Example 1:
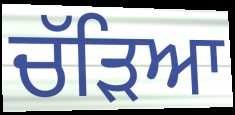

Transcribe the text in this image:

ਚੱੜਿਆ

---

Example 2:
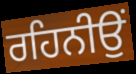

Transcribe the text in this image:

ਰਹਿਨੀਉਂ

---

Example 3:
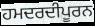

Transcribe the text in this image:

ਹਮਦਰਦੀਪੂਰਨ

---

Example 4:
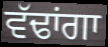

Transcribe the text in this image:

ਵੱਢਾਂਗਾ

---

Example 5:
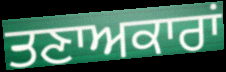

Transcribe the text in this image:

ਤਣਾਅਕਾਰਾਂ